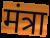
मंत्रा